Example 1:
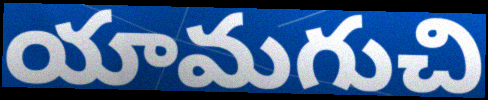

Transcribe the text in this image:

యామగుచి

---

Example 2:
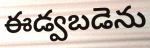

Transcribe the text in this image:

ఈడ్వబడెను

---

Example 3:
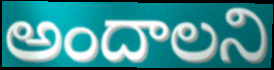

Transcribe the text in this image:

అందాలని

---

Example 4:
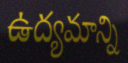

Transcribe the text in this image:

ఉద్యమాన్ని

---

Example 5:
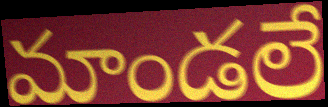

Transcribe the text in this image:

మాండలే